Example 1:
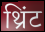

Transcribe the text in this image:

थ्रिंट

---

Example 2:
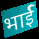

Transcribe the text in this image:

भार्ई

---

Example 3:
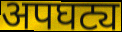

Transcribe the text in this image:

अपघट्य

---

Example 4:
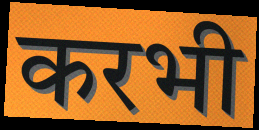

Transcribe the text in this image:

करभी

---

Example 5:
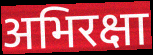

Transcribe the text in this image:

अभिरक्षा